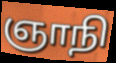
ஞாநி